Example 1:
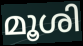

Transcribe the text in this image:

മൂശി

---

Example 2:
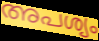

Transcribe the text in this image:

അപശ്യം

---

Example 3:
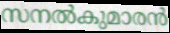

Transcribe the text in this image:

സനൽകുമാരൻ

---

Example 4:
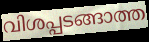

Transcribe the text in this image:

വിശപ്പടങ്ങാത്ത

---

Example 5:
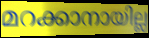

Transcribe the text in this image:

മറക്കാനായില്ല